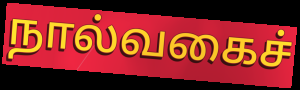
நால்வகைச்